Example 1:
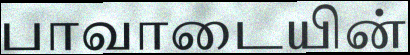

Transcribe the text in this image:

பாவாடையின்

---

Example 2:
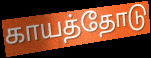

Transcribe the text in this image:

காயத்தோடு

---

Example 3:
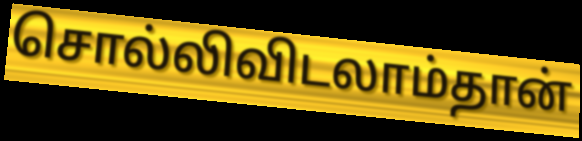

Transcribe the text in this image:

சொல்லிவிடலாம்தான்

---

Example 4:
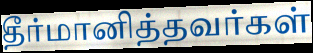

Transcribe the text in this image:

தீர்மானித்தவர்கள்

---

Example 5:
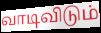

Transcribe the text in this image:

வாடிவிடும்